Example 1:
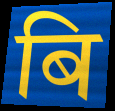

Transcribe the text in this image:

बि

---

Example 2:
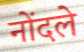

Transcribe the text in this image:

नोंदले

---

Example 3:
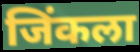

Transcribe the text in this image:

जिंकला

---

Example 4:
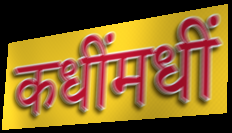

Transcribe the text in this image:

कधींमधीं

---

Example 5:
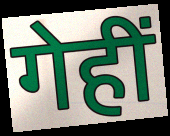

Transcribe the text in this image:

गेहीं